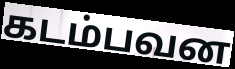
கடம்பவன